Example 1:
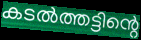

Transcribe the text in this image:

കടൽത്തട്ടിന്റെ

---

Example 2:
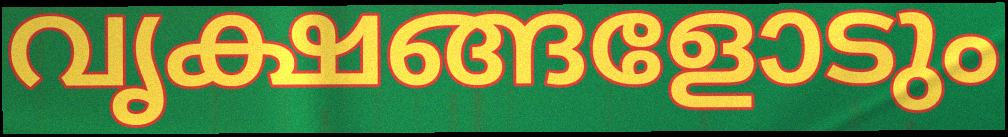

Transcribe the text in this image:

വൃക്ഷങ്ങളോടും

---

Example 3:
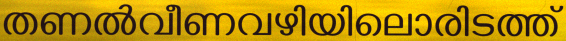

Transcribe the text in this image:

തണൽവീണവഴിയിലൊരിടത്ത്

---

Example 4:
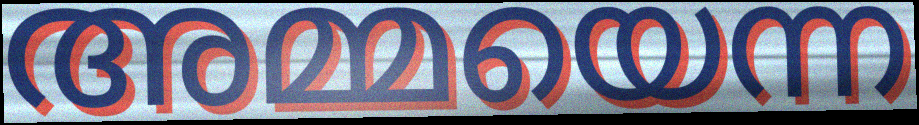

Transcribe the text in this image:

അമ്മയെന്ന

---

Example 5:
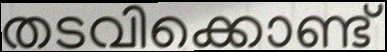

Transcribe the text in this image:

തടവിക്കൊണ്ട്